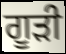
ਗੂੜੀ